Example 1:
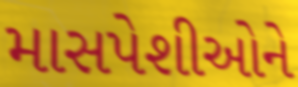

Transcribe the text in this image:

માસપેશીઓને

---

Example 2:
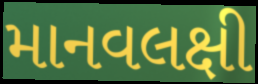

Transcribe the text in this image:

માનવલક્ષી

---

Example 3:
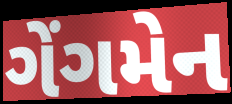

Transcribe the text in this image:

ગેંગમેન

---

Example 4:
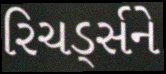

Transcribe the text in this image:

રિચર્ડ્સને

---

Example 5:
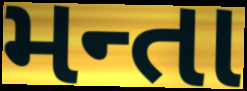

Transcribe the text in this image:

મન્તા